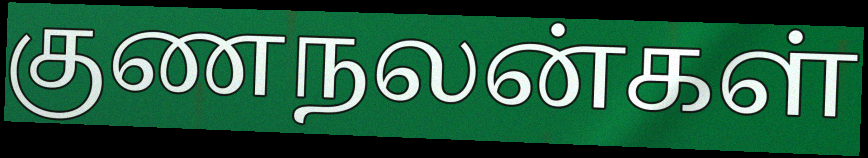
குணநலன்கள்